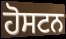
ਹੋਸਟਨ